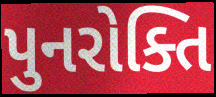
પુનરોક્તિ